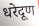
धरेदूण